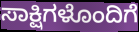
ಸಾಕ್ಷಿಗಳೊಂದಿಗೆ